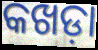
କଖଡ଼ା